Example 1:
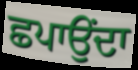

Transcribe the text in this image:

ਛਪਾਉਂਦਾ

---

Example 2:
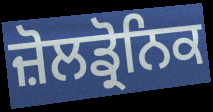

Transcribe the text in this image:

ਜ਼ੋਲਡ੍ਰੋਨਿਕ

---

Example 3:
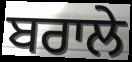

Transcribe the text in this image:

ਬਰਾਲੇ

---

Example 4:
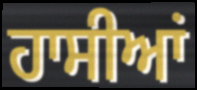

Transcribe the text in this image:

ਹਾਸੀਆਂ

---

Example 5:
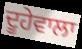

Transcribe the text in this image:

ਦੂਹੇਵਾਲਾ